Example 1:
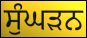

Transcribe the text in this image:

ਸੁੰਘੜਨ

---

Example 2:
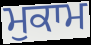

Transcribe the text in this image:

ਮੁਕਾਮ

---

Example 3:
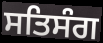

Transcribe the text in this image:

ਸਤਿਸੰਗ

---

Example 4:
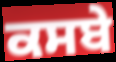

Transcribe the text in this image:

ਕਸਬੇ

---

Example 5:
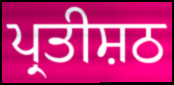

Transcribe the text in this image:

ਪ੍ਰਤੀਸ਼ਠ